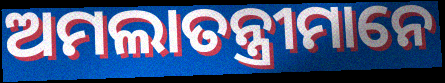
ଅମଲାତନ୍ତ୍ରୀମାନେ